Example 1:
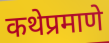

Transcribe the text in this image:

कथेप्रमाणे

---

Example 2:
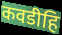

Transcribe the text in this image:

कवडीहि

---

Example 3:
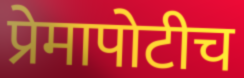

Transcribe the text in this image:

प्रेमापोटीच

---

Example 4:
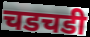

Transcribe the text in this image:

चडचडी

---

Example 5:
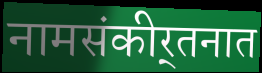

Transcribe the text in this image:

नामसंकीर्तनात